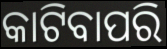
କାଟିବାପରି